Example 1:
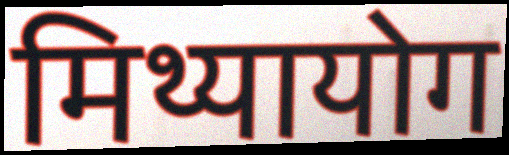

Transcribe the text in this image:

मिथ्यायोग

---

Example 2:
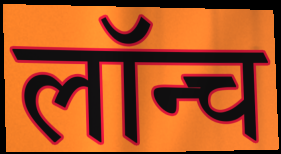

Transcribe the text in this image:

लॉन्‍च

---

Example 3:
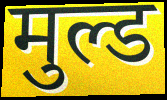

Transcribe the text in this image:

मुल्ड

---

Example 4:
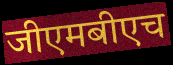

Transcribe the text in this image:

जीएमबीएच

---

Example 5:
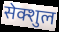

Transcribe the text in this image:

सेक्शुल